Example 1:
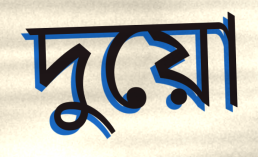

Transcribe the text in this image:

দুয়ো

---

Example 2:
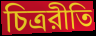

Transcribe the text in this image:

চিত্ররীতি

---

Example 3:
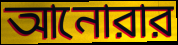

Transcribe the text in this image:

আনোরার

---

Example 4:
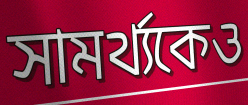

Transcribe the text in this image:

সামর্থ্যকেও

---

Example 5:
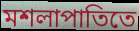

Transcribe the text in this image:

মশলাপাতিতে